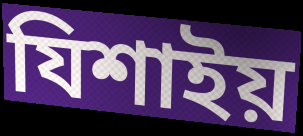
যিশাইয়